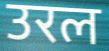
उरल